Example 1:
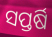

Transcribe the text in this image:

ସପ୍ତର୍ଷି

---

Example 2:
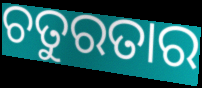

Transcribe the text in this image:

ଚତୁରତାର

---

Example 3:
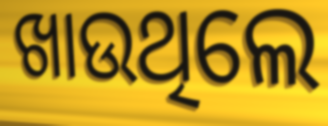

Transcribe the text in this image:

ଖାଉଥିଲେ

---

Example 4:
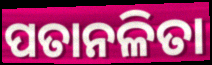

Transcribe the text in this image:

ପତାନଳିତା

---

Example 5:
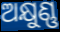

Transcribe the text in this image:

ଅକ୍ଷୁଣ୍ଣ